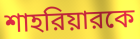
শাহরিয়ারকে